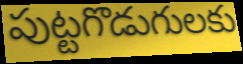
పుట్టగొడుగులకు